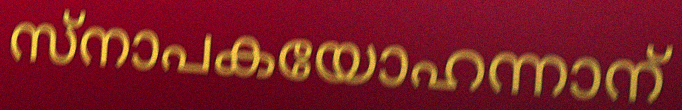
സ്നാപകയോഹന്നാന്